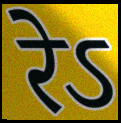
रेऽ